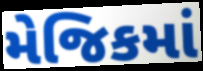
મેજિકમાં